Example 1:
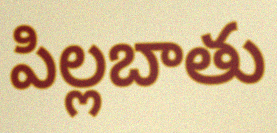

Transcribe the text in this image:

పిల్లబాతు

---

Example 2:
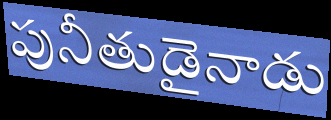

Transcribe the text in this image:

పునీతుడైనాడు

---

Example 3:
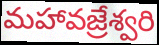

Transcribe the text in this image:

మహావజ్రేశ్వరి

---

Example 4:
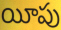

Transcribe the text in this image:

యీపు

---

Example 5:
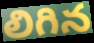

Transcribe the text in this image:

లిగిన